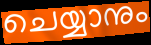
ചെയ്യാനും